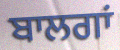
ਬਾਲਗਾਂ